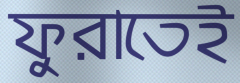
ফুরাতেই